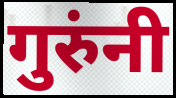
गुरुंनी